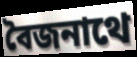
বৈজনাথে